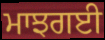
ਮਾਝਗਈ